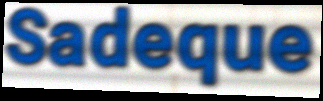
Sadeque